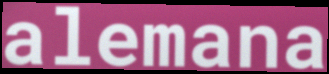
alemana